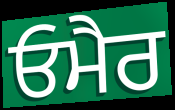
ਓਮੈਰ